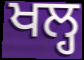
ਖਲ੍ਹ